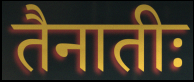
तैनातीः